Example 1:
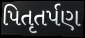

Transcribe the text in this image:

પિતૃતર્પણ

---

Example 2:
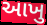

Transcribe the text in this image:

આખુ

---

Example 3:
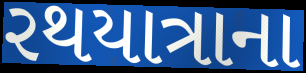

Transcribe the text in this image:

રથયાત્રાના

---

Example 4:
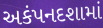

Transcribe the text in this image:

અકંપનદશામાં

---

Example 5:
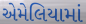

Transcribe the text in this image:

એમેલિયામાં